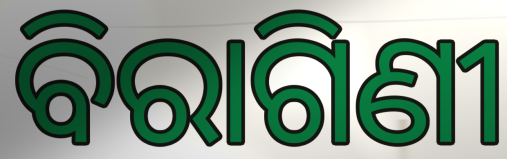
ବିରାଗିଣୀ